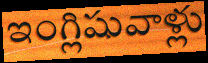
ఇంగ్లిషువాళ్లు